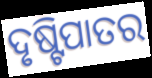
ଦୃଷ୍ଟିପାତର